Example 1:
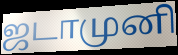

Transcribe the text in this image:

ஜடாமுனி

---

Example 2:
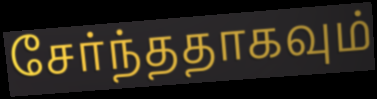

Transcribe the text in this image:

சேர்ந்ததாகவும்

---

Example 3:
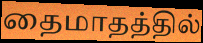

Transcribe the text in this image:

தைமாதத்தில்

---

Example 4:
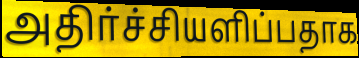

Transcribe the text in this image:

அதிர்ச்சியளிப்பதாக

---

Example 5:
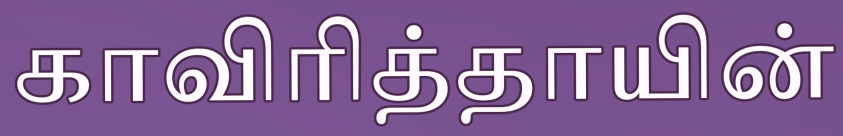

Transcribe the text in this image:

காவிரித்தாயின்